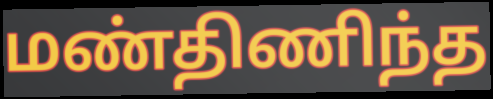
மண்திணிந்த